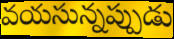
వయసున్నప్పుడు